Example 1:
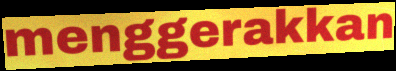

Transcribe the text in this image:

menggerakkan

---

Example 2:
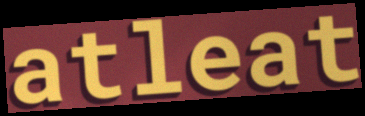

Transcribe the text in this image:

atleat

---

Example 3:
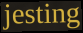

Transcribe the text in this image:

jesting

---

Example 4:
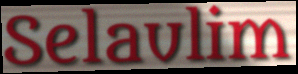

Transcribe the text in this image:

Selaulim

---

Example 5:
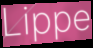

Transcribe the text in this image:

Lippe